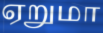
ஏறுமா